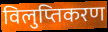
विलुप्तिकरण